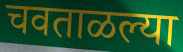
चवताळल्या